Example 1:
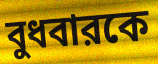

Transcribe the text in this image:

বুধবারকে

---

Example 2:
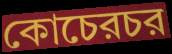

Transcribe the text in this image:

কোচেরচর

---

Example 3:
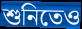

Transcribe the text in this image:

শুনিতেও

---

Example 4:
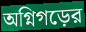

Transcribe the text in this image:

অগ্নিগড়ের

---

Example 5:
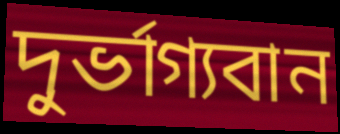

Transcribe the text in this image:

দুর্ভাগ্যবান